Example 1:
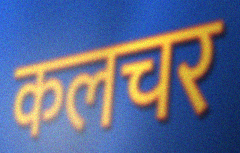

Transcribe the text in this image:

कलचर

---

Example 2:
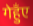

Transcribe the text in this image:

गेहुँए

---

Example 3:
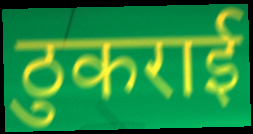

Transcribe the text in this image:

ठुकराई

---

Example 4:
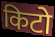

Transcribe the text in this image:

किटो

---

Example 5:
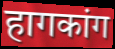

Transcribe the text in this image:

हागकांग